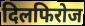
दिलफिरोज